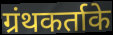
ग्रंथकर्ताके